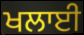
ਖਲਾਈ